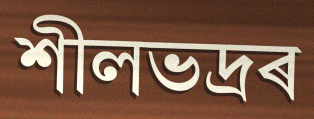
শীলভদ্ৰৰ